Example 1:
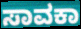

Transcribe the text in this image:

ಸಾವಕಾ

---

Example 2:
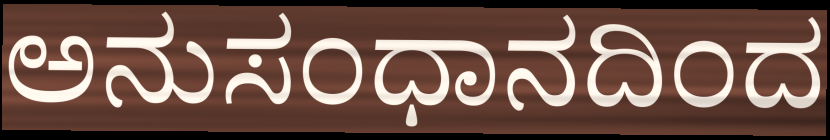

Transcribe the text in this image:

ಅನುಸಂಧಾನದಿಂದ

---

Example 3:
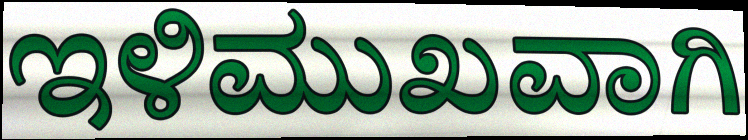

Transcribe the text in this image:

ಇಳಿಮುಖವಾಗಿ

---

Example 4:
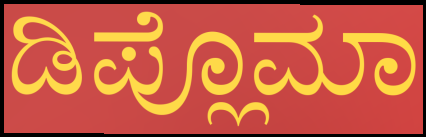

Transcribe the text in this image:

ಡಿಪ್ಲೊಮಾ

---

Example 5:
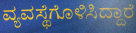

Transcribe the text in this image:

ವ್ಯವಸ್ಥೆಗೊಳಿಸಿದ್ದಾರೆ